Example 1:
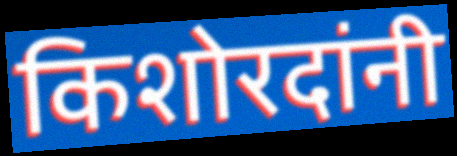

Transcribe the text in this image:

किशोरदांनी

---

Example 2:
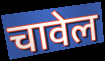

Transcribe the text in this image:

चावेल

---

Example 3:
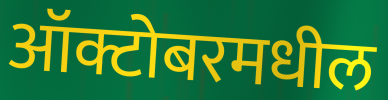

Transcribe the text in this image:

ऑक्टोबरमधील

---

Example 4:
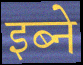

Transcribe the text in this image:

इब्ने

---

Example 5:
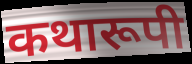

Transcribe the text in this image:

कथारूपी